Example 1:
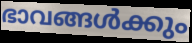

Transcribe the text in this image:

ഭാവങ്ങൾക്കും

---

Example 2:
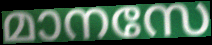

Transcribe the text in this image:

മാനസേ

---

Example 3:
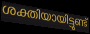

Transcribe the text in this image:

ശക്തിയായിട്ടുണ്ട്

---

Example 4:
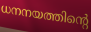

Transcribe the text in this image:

ധനനയത്തിന്റെ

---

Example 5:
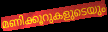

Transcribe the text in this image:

മണിക്കൂറുകളുടെയും